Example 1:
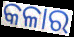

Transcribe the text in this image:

କଳାର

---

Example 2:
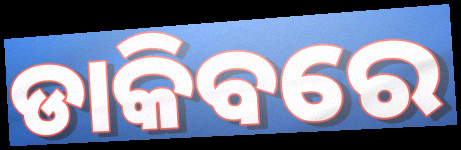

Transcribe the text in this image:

ଡାକିବରେ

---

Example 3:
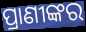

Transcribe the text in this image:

ପ୍ରାଣୀଙ୍କର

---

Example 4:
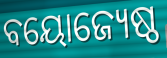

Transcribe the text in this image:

ବୟୋଜ୍ୟେଷ୍ଠ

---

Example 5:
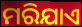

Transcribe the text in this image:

ମରିଯାଏ